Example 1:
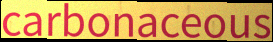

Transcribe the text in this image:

carbonaceous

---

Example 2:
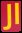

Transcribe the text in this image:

Jl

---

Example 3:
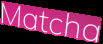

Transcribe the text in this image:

Matcha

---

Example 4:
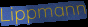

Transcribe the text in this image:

Lippmann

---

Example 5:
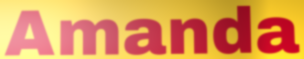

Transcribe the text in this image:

Amanda